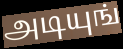
அடியுங்